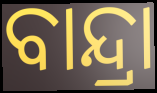
ବାନ୍ଦ୍ରା